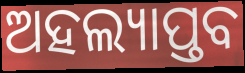
ଅହଲ୍ୟାପ୍ତବ